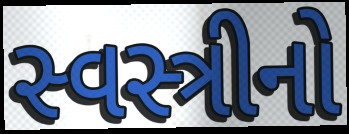
સ્વસ્ત્રીનો